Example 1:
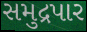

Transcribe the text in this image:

સમુદ્રપાર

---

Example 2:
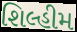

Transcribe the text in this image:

શિલ્હીમ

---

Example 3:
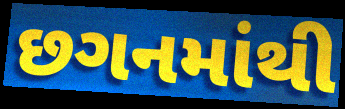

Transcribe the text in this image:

છગનમાંથી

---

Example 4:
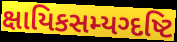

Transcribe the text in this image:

ક્ષાયિકસમ્યગ્દષ્ટિ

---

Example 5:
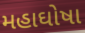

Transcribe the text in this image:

મહાઘોષા